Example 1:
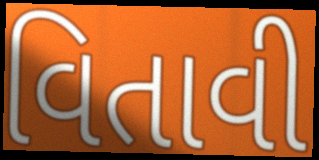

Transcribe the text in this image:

વિતાવી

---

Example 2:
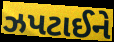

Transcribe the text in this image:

ઝપટાઈને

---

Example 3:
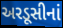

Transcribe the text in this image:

અરડૂસીનાં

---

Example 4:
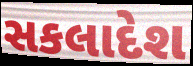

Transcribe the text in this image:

સકલાદેશ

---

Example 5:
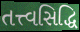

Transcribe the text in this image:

તત્ત્વસિદ્ધિ